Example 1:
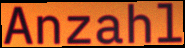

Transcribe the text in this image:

Anzahl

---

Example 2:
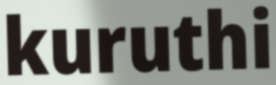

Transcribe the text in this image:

kuruthi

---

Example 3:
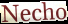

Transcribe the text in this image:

Necho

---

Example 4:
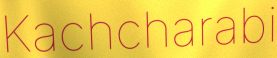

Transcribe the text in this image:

Kachcharabi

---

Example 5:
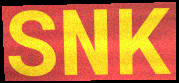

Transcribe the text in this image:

SNK